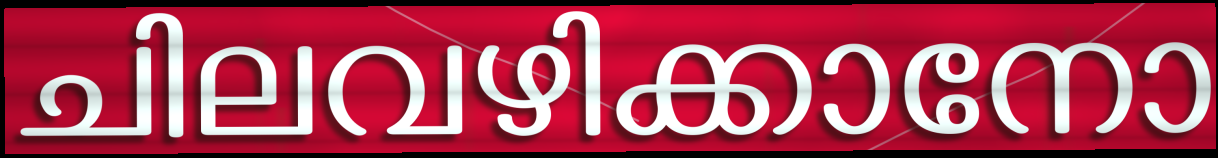
ചിലവഴിക്കാനോ